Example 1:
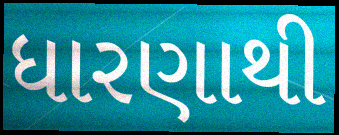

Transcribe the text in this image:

ધારણાથી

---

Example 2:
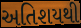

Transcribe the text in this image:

અતિશયથી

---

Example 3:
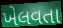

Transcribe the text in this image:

ખેલવતા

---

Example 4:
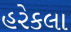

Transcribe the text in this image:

હરેકલા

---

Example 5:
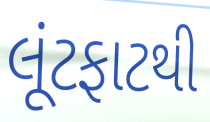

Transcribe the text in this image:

લૂંટફાટથી